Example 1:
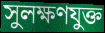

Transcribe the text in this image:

সুলক্ষণযুক্ত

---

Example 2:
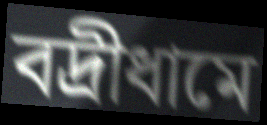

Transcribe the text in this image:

বদ্রীধামে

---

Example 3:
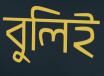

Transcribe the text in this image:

বুলিই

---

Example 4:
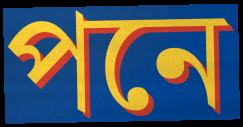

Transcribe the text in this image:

পনে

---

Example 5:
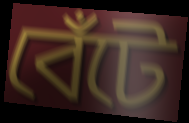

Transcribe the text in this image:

বেঁটে